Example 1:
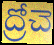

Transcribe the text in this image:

ద్రోచె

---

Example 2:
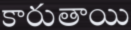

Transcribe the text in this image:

కారుతాయి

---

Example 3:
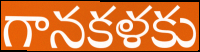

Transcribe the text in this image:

గానకళకు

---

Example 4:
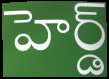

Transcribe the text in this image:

హెర్డ్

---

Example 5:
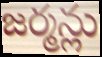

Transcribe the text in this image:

జర్మన్లు